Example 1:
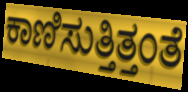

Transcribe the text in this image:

ಕಾಣಿಸುತ್ತಿತ್ತಂತೆ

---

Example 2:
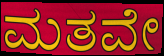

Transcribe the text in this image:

ಮತವೇ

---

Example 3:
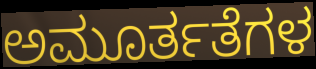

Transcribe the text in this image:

ಅಮೂರ್ತತೆಗಳ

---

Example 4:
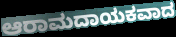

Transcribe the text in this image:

ಆರಾಮದಾಯಕವಾದ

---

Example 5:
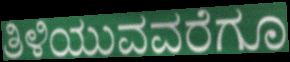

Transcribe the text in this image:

ತಿಳಿಯುವವರೆಗೂ